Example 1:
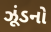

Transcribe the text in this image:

ઝૂંડનો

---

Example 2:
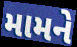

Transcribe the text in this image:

મામને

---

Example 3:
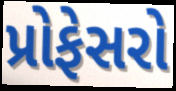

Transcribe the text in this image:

પ્રોફેસરો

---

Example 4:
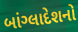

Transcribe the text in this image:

બાંગ્લાદેશનો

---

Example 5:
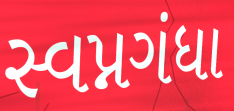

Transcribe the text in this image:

સ્વપ્નગંધા